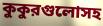
কুকুরগুলোসহ